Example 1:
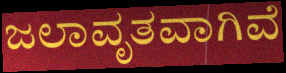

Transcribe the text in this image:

ಜಲಾವೃತವಾಗಿವೆ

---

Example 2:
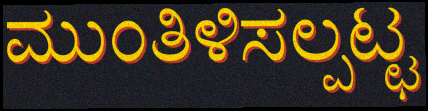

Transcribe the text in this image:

ಮುಂತಿಳಿಸಲ್ಪಟ್ಟ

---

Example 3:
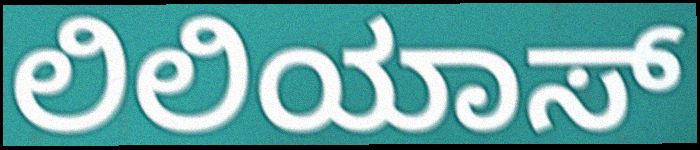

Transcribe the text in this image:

ಲಿಲಿಯಾಸ್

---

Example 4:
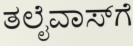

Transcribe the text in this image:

ತಲೈವಾಸ್‌ಗೆ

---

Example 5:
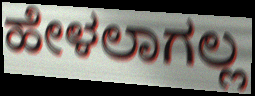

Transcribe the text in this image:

ಹೇಳಲಾಗಲ್ಲ